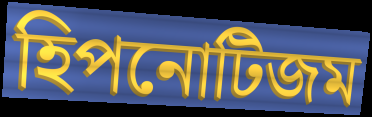
হিপনোটিজম